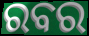
ରବର